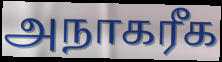
அநாகரீக